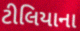
ટીલિયાના